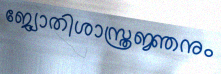
ജ്യോതിശാസ്ത്രജ്ഞനും